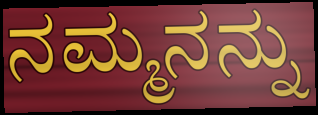
ನಮ್ಮನನ್ನು